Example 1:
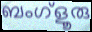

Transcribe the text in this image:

ബംഗ്ളൂരു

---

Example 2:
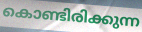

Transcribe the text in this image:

കൊണ്ടിരിക്കുന്ന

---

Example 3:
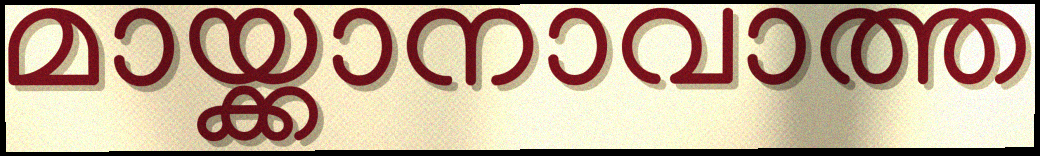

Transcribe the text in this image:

മായ്ക്കാനാവാത്ത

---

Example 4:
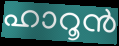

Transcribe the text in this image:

ഹാറൂൻ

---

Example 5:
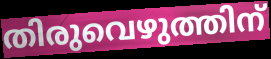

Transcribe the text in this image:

തിരുവെഴുത്തിന്